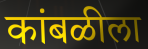
कांबळीला